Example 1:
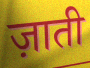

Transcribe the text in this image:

ज़ाती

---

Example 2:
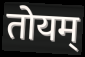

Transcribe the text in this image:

तोयम्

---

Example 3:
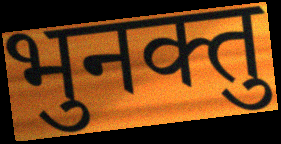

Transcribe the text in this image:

भुनक्तु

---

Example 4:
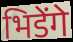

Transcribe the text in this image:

भिडेंगे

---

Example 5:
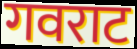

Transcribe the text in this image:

गवराट